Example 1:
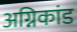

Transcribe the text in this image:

अग्निकांड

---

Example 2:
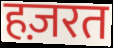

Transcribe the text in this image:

हज़रत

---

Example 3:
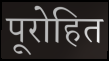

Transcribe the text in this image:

पूरोहित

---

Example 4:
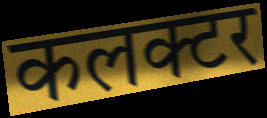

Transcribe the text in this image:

कलक्‍टर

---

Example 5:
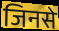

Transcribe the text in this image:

जिनसे